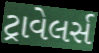
ટ્રાવેલર્સ